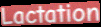
Lactation